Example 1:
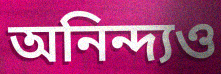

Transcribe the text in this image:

অনিন্দ্যও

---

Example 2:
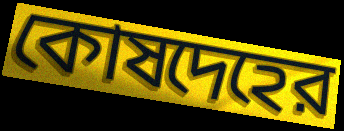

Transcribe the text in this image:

কোষদেহের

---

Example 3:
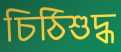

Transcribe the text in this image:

চিঠিশুদ্ধ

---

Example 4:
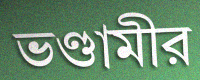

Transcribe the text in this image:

ভণ্ডামীর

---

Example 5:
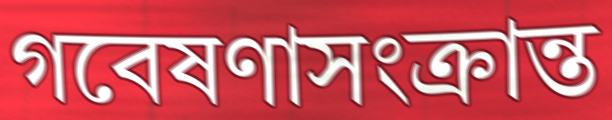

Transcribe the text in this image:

গবেষণাসংক্রান্ত